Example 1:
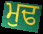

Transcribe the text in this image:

ਮੁਢ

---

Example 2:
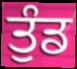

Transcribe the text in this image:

ਤੁੰਡ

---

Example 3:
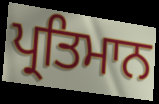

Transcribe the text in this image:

ਪ੍ਰਤਿਮਾਨ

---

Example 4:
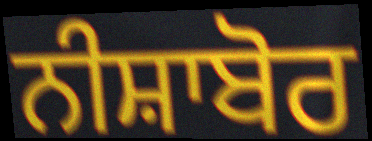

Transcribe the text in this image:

ਨੀਸ਼ਾਬੋਰ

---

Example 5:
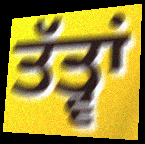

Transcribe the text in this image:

ਤੱਤ੍ਵਾਂ